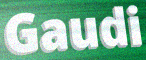
Gaudi